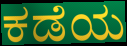
ಕಡೆಯ